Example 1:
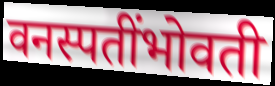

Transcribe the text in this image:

वनस्पतींभोवती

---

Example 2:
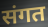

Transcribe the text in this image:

संगत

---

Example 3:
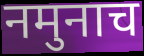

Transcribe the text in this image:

नमुनाच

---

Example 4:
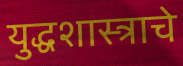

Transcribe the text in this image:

युद्धशास्त्राचे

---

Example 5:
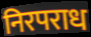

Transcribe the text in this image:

निरपराध